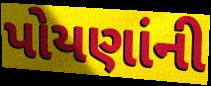
પોયણાંની